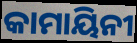
କାମାୟିନୀ